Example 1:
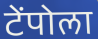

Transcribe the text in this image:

टेंपोला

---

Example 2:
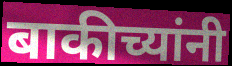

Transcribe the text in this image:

बाकीच्यांनी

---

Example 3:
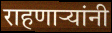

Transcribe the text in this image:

राहणार्‍यांनी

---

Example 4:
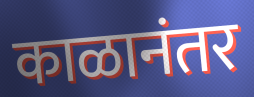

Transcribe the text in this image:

काळानंतर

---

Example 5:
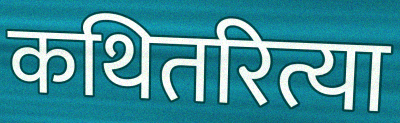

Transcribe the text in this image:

कथितरित्या